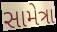
સામેત્રા